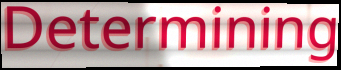
Determining